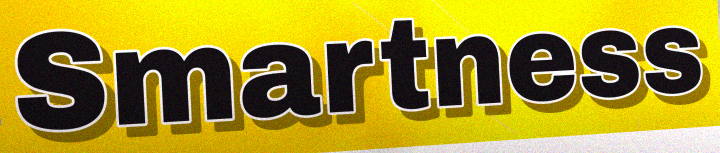
Smartness